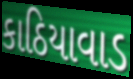
કાઠિયાવાડ